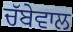
ਚੱਬੇਵਾਲ